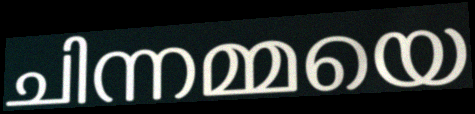
ചിന്നമ്മയെ